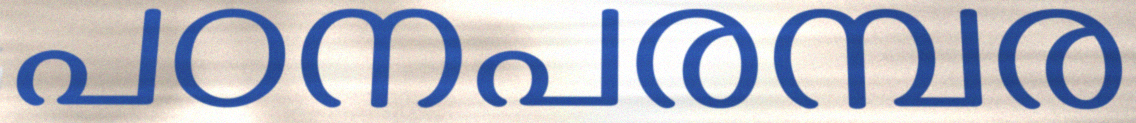
പഠനപരമ്പര